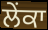
ਲੇਂਕਾ